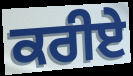
ਕਰੀਏੇ